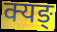
क्यङ्